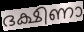
ദക്ഷിണാ